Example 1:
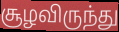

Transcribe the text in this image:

சூழவிருந்து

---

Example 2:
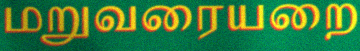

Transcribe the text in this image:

மறுவரையறை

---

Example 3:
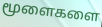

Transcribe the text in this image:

மூளைகளை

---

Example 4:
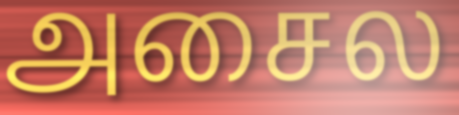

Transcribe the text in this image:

அசைல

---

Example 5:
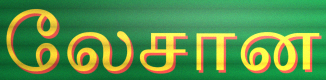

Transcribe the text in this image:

லேசான